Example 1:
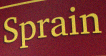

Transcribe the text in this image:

Sprain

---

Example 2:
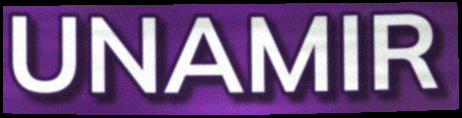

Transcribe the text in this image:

UNAMIR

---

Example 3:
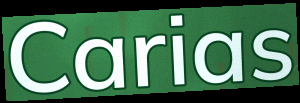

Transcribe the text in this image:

Carias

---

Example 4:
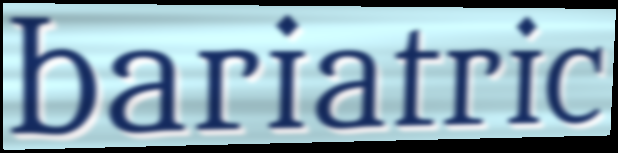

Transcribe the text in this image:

bariatric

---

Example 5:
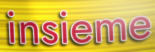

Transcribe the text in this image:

insieme